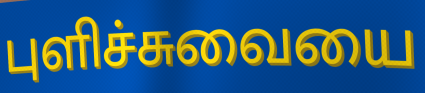
புளிச்சுவையை